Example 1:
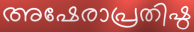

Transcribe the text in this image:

അഷേരാപ്രതിഷ്ഠ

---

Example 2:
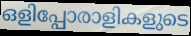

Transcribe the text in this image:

ഒളിപ്പോരാളികളുടെ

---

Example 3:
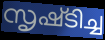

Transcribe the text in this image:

സൃഷ്‌ടിച്ച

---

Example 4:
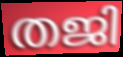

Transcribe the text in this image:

തജി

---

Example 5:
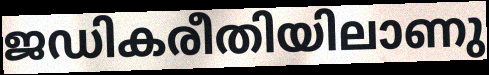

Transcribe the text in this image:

ജഡികരീതിയിലാണു